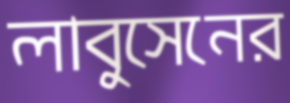
লাবুসেনের